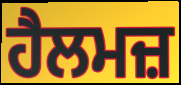
ਹੈਲਮਜ਼